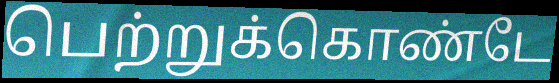
பெற்றுக்கொண்டே